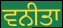
ਵਨੀਤਾ